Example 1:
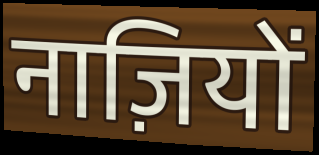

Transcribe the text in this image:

नाज़ियों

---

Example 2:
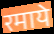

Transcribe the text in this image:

रमाये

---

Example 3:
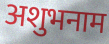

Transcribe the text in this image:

अशुभनाम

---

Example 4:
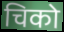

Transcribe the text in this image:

चिको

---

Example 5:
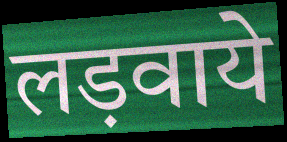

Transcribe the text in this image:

लड़वाये